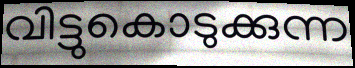
വിട്ടുകൊടുക്കുന്ന